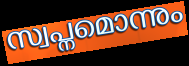
സ്വപ്നമൊന്നും